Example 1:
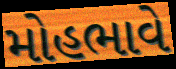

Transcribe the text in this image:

મોહભાવે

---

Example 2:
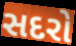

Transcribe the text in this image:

સદરો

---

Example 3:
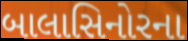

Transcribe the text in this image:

બાલાસિનોરના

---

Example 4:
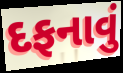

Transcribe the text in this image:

દફનાવું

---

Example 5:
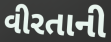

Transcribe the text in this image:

વીરતાની